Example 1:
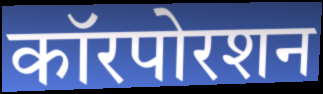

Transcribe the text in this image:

कॉरपोरशन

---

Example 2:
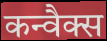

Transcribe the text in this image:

कन्वैक्स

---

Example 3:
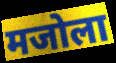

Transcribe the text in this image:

मजोला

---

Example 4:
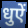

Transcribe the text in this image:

धुऐं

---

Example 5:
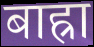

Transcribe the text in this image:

बाह्रा